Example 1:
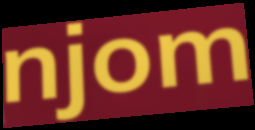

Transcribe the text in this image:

njom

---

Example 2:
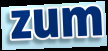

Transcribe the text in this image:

zum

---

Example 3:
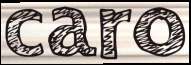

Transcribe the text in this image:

caro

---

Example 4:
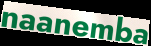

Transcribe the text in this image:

naanemba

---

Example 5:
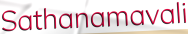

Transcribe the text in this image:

Sathanamavali